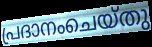
പ്രദാനംചെയ്തു